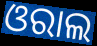
ଓରାଲ